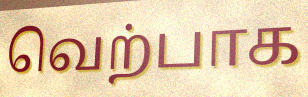
வெற்பாக